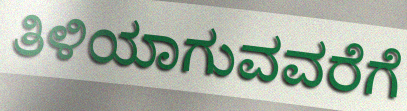
ತಿಳಿಯಾಗುವವರೆಗೆ